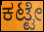
ಕಟ್ಟೇ